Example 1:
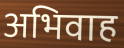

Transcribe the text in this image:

अभिवाह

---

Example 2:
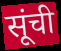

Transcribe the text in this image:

सूंची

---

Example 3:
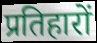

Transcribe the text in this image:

प्रतिहारों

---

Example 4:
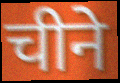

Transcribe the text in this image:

चीने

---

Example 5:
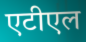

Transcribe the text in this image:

एटीएल